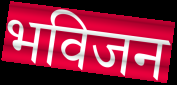
भविजन